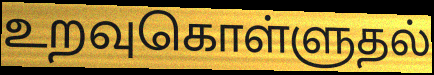
உறவுகொள்ளுதல்